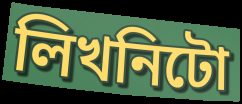
লিখনিটো